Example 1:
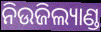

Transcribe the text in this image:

ନିଉଜିଲ୍ୟାଣ୍ଡ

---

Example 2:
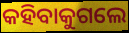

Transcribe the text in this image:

କହିବାକୁଗଲେ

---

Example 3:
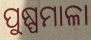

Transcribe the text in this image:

ପୁଷ୍ପମାଳା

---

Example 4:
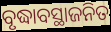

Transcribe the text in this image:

ବୃଦ୍ଧାବସ୍ଥାଜନିତ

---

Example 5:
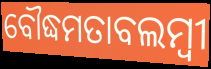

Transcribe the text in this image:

ବୌଦ୍ଧମତାବଲମ୍ବୀ